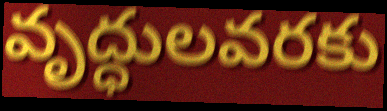
వృద్ధులవరకు